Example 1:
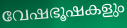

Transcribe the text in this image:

വേഷഭൂഷകളും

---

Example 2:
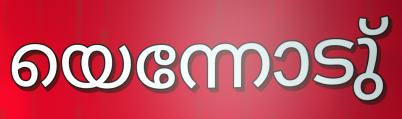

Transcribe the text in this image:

യെന്നോടു്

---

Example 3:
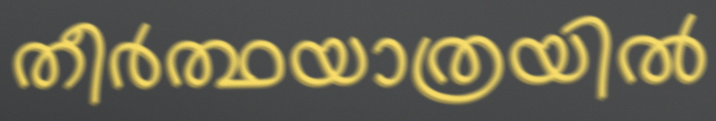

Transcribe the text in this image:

തീർത്ഥയാത്രയിൽ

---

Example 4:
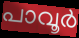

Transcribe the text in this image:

പാവൂർ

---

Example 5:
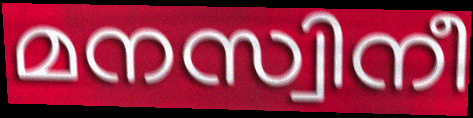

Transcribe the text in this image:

മനസ്വിനീ